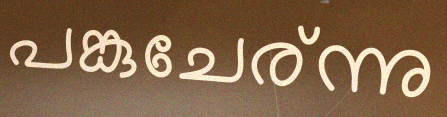
പങ്കുചേര്ന്നു